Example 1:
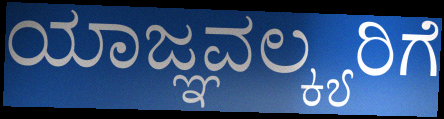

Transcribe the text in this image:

ಯಾಜ್ಞವಲ್ಕ್ಯರಿಗೆ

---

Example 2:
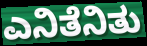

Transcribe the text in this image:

ಎನಿತೆನಿತು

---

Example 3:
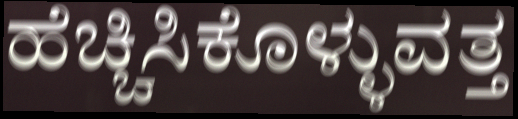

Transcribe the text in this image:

ಹೆಚ್ಚಿಸಿಕೊಳ್ಳುವತ್ತ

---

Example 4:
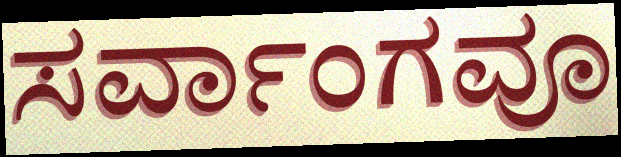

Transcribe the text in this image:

ಸರ್ವಾಂಗವೂ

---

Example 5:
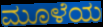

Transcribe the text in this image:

ಮೂಳೆಯ